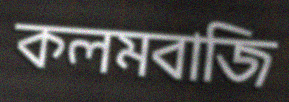
কলমবাজি